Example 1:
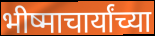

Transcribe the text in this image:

भीष्माचार्यांच्या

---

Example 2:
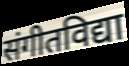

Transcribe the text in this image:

संगीतविद्या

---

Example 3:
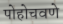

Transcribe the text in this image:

पोहोचवणे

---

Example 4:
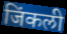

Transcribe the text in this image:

जिंकली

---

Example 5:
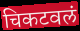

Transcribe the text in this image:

चिकटवलं